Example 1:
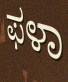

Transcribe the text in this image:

ಫಳಾ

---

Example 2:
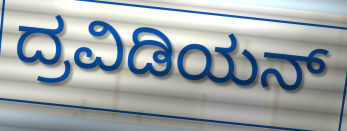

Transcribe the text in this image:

ದ್ರವಿಡಿಯನ್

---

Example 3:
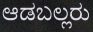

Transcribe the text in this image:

ಆಡಬಲ್ಲರು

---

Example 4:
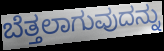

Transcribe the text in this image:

ಬೆತ್ತಲಾಗುವುದನ್ನು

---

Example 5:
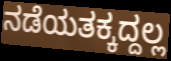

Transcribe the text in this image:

ನಡೆಯತಕ್ಕದ್ದಲ್ಲ